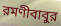
রমণীবাবুর